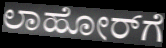
ಲಾಹೋರ್‌ಗೆ